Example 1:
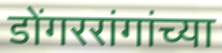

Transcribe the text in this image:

डोंगररांगांच्या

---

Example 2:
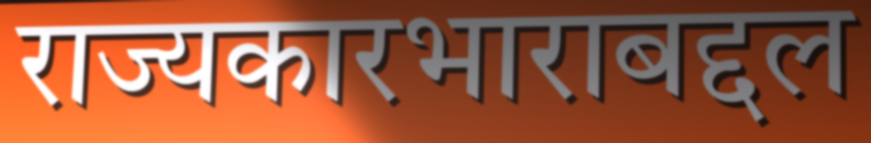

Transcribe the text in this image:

राज्यकारभाराबद्दल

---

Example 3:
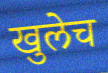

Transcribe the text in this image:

खुलेच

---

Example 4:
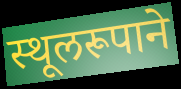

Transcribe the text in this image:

स्थूलरूपाने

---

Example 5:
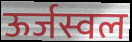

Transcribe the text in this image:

ऊर्जस्वल